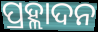
ପ୍ରହ୍ଲାଦନ